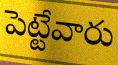
పెట్టేవారు